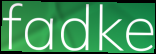
fadke